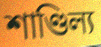
শাণ্ডিল্য